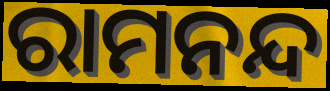
ରାମନନ୍ଦ